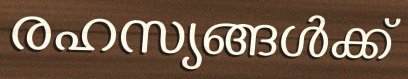
രഹസ്യങ്ങൾക്ക്